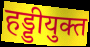
हड्डीयुक्त